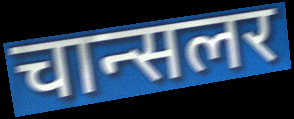
चान्सलर